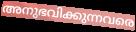
അനുഭവിക്കുന്നവരെ